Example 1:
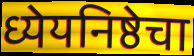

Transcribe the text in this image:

ध्येयनिष्ठेचा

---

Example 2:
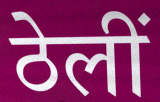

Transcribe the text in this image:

ठेलीं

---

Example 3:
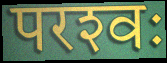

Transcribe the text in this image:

परश्वः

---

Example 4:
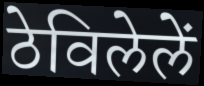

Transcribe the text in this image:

ठेविलेलें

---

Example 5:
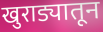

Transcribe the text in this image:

खुराड्यातून